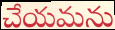
చేయమను